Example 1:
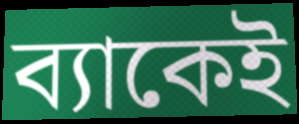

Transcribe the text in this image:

ব্যাকেই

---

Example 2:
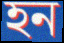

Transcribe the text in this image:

হন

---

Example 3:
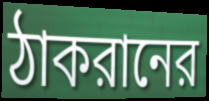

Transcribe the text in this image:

ঠাকরানের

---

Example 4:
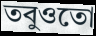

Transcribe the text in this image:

তবুওতো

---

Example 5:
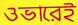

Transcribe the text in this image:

ওভারেই